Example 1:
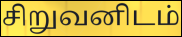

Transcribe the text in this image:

சிறுவனிடம்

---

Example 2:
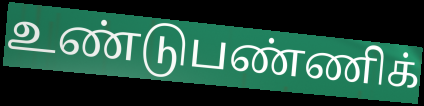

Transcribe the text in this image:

உண்டுபண்ணிக்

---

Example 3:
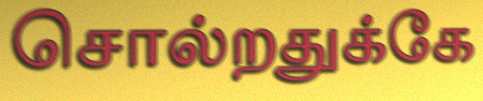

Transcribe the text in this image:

சொல்றதுக்கே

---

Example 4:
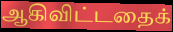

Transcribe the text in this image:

ஆகிவிட்டதைக்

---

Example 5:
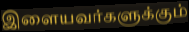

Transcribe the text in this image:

இளையவர்களுக்கும்